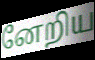
னேறிய